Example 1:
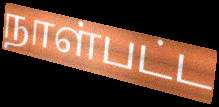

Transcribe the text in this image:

நாள்பட்ட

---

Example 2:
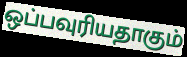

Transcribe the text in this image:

ஒப்பவுரியதாகும்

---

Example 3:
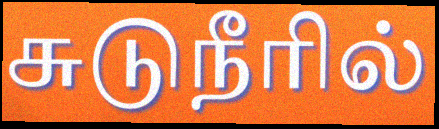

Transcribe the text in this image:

சுடுநீரில்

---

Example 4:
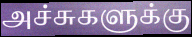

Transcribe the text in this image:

அச்சுகளுக்கு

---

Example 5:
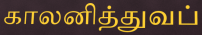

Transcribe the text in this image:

காலனித்துவப்